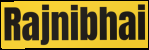
Rajnibhai